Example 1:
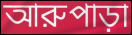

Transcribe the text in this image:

আরুপাড়া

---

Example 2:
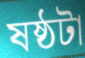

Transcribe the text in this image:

ষষ্ঠটা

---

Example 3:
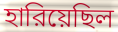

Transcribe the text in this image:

হারিয়েছিল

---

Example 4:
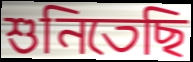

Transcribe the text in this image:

শুনিতেছি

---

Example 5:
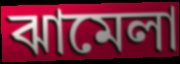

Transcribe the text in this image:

ঝামেলা